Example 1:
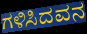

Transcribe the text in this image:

ಗಳಿಸಿದವನ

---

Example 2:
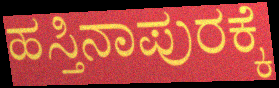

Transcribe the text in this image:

ಹಸ್ತಿನಾಪುರಕ್ಕೆ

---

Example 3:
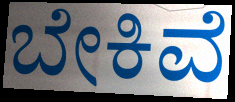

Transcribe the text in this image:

ಬೇಕಿವೆ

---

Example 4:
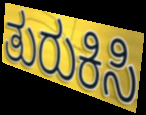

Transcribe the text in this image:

ತುರುಕಿಸಿ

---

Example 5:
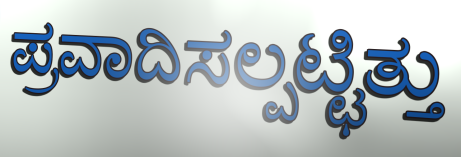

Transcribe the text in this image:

ಪ್ರವಾದಿಸಲ್ಪಟ್ಟಿತ್ತು